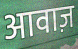
आवाज़